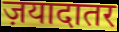
ज़यादातर